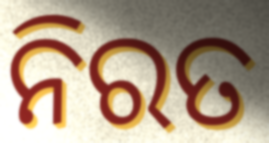
ନିରତ